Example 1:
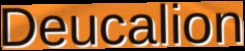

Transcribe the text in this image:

Deucalion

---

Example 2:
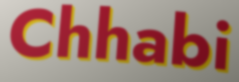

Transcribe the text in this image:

Chhabi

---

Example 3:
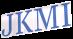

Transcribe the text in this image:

JKMI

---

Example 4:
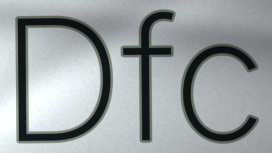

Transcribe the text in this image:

Dfc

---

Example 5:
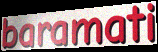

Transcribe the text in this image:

baramati